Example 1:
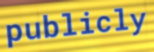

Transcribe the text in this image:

publicly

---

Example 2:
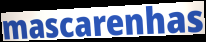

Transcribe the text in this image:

mascarenhas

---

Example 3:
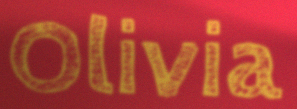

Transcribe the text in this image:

Olivia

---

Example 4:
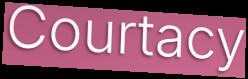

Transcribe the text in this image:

Courtacy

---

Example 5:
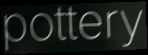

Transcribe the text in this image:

pottery